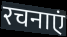
रचनाएं